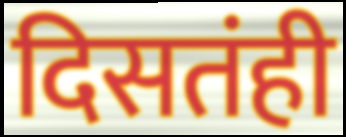
दिसतंही